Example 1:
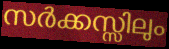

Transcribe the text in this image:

സർക്കസ്സിലും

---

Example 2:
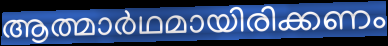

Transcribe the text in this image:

ആത്മാർഥമായിരിക്കണം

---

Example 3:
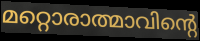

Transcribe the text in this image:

മറ്റൊരാത്മാവിന്റെ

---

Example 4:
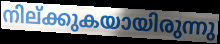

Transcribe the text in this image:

നില്ക്കുകയായിരുന്നു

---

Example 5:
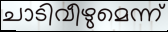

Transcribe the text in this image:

ചാടിവീഴുമെന്ന്